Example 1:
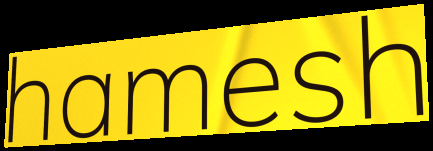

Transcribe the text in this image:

hamesh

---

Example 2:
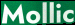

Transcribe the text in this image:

Mollic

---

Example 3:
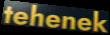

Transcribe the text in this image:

tehenek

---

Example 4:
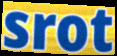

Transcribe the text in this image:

srot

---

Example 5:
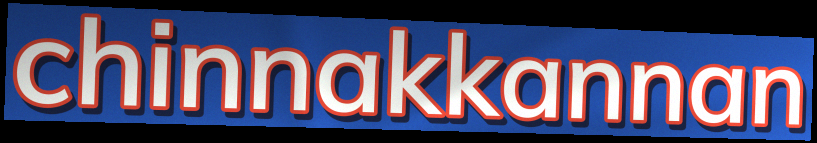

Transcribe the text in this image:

chinnakkannan